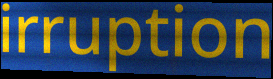
irruption